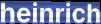
heinrich